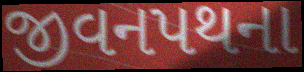
જીવનપથના